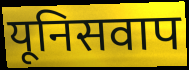
यूनिसवाप